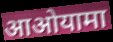
आओयामा